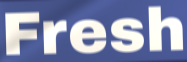
Fresh